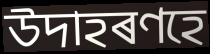
উদাহৰণহে